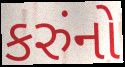
કરુંનો